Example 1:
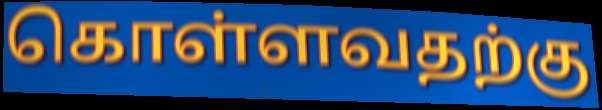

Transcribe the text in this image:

கொள்ளவதற்கு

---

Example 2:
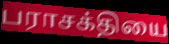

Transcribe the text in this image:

பராசக்தியை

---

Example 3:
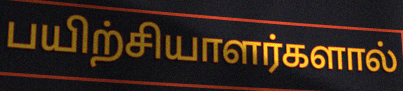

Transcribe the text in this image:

பயிற்சியாளர்களால்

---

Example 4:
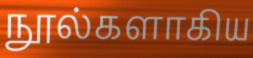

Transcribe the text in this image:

நூல்களாகிய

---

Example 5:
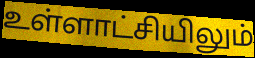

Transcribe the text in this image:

உள்ளாட்சியிலும்